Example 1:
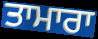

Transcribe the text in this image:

ਤਾਮਾਰਾ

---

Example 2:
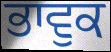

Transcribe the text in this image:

ਭਾਵੁਕ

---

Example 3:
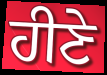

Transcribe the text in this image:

ਹੀਣੇ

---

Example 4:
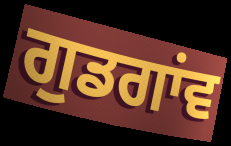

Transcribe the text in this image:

ਗੁਡਗਾਂਵ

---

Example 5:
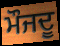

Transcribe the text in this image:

ਮੌਜਦੂ